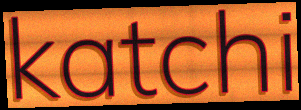
katchi